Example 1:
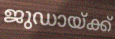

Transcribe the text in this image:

ജുഡായ്ക്ക്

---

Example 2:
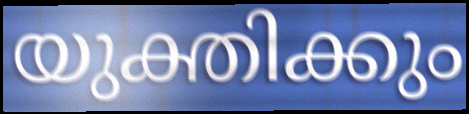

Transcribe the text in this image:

യുക്തിക്കും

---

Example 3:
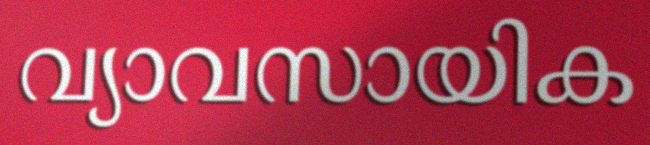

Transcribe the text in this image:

വ്യാവസായിക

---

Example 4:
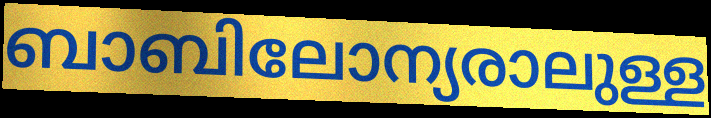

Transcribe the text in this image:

ബാബിലോന്യരാലുള്ള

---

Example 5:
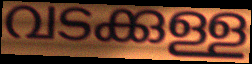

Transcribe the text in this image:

വടക്കുള്ള